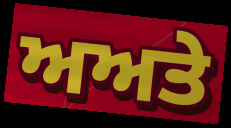
ਅਅਤੇ